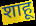
शाहू